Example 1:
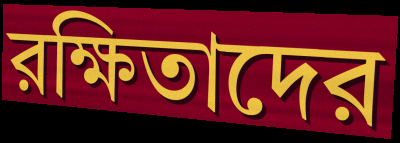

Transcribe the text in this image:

রক্ষিতাদের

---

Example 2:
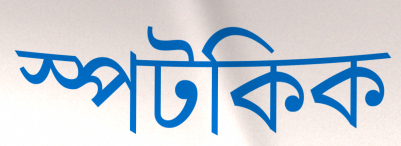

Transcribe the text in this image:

স্পটকিক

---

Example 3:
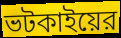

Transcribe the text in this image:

ভটকাইয়ের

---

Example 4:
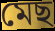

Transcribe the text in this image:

মেছ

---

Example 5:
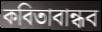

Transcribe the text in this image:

কবিতাবান্ধব